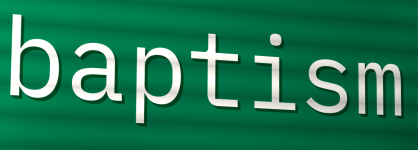
baptism